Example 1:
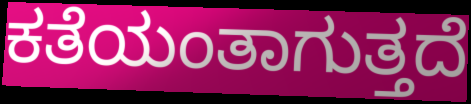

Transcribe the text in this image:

ಕತೆಯಂತಾಗುತ್ತದೆ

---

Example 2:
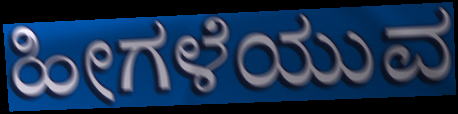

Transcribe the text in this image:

ಹೀಗಳೆಯುವ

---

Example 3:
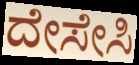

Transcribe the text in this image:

ದೇಸೇಸಿ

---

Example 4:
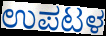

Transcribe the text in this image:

ಉಪಟಳ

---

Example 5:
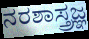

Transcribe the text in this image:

ನರಶಾಸ್ತ್ರಜ್ಞ